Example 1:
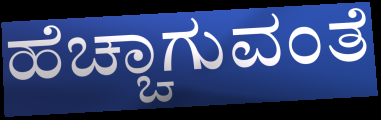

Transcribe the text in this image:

ಹೆಚ್ಚಾಗುವಂತೆ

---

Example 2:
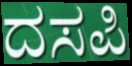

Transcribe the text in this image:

ದಸಪಿ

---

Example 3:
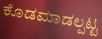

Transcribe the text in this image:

ಕೊಡಮಾಡಲ್ಪಟ್ಟ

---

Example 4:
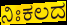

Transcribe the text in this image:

ನಿಃಕಲದ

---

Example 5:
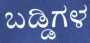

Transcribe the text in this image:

ಬಡ್ಡಿಗಳ